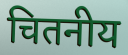
चितनीय